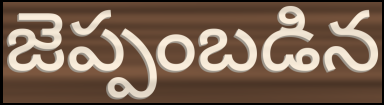
జెప్పంబడిన